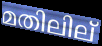
മതിലില്